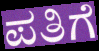
ಪತಿಗೆ